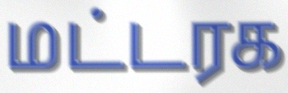
மட்டரக